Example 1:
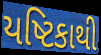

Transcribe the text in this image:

યષ્ટિકાથી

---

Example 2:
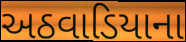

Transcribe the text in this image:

અઠવાડિયાના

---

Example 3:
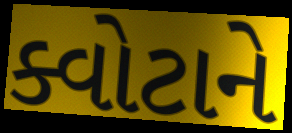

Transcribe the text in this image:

ક્વોટાને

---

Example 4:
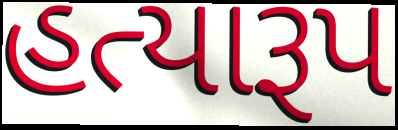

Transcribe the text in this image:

હત્યારૂપ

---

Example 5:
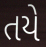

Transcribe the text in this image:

તયે